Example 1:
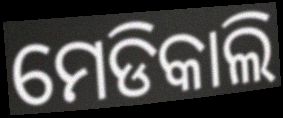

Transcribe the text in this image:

ମେଡିକାଲି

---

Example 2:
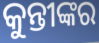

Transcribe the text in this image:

କୁନ୍ତୀଙ୍କର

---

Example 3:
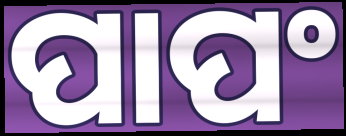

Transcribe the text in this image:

ପାପଂ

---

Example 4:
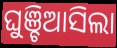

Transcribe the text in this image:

ଘୁଞ୍ଚିଆସିଲା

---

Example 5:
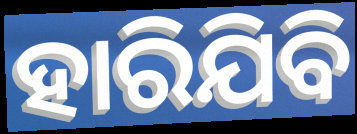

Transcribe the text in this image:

ହାରିଯିବି